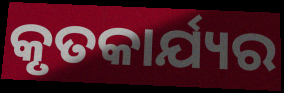
କୃତକାର୍ଯ୍ୟର